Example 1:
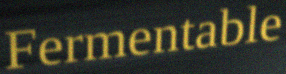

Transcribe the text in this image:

Fermentable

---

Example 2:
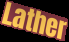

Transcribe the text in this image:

Lather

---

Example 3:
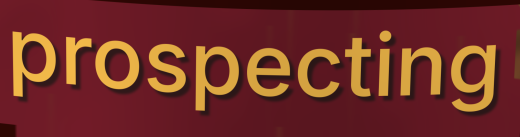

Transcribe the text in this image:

prospecting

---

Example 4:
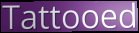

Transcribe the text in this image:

Tattooed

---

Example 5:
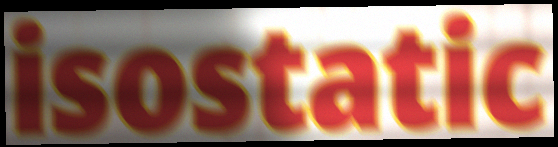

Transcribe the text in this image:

isostatic